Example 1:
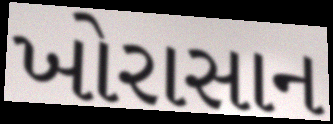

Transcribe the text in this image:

ખોરાસાન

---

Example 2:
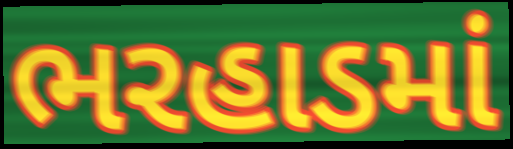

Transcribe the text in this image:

ભરહાડમાં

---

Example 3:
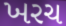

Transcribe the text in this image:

ખરચ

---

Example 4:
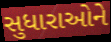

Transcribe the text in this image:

સુધારાઓને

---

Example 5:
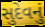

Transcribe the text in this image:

સુદેવનું